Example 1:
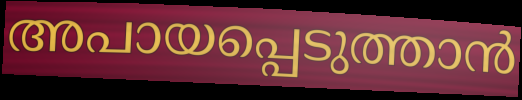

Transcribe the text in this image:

അപായപ്പെടുത്താൻ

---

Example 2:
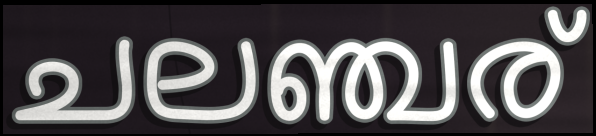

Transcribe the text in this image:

ചലഞ്ചര്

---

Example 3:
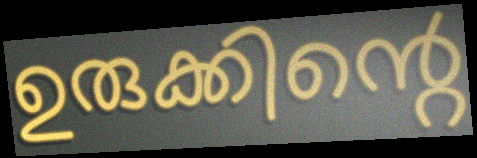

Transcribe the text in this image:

ഉരുക്കിന്റെ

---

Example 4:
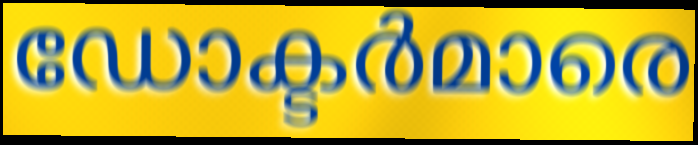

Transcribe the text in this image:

ഡോക്ടർമാരെ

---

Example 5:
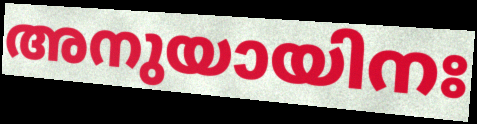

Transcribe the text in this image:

അനുയായിനഃ